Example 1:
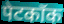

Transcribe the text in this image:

पेटकॉक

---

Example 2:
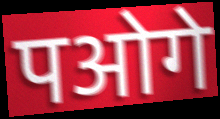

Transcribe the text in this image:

पओगे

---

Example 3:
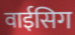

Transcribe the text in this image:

वाईसिग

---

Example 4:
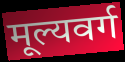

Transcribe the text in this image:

मूल्यवर्ग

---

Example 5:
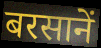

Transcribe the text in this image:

बरसानें